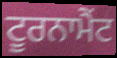
ਟੂਰਨਾਮੈਂਟ